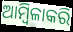
ଆମ୍ବିଳାକରି